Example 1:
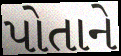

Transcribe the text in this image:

પોતાને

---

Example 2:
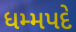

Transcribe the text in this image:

ધમ્મપદે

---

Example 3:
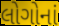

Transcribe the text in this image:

લોગોનાં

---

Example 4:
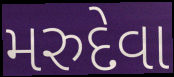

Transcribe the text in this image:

મરુદેવા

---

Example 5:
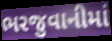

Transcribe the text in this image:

ભરજુવાનીમાં